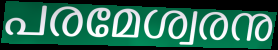
പരമേശ്വരനു